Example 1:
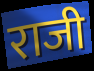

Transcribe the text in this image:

राजी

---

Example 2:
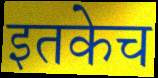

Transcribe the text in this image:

इतकेच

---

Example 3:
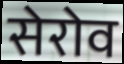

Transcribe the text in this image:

सेरोव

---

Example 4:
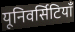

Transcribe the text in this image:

यूनिवर्सिटियाँ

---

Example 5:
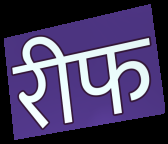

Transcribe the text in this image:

रीफ